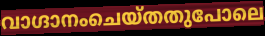
വാഗ്ദാനംചെയ്തതുപോലെ